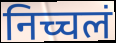
निच्चलं